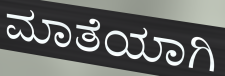
ಮಾತೆಯಾಗಿ